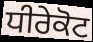
ਧੀਰੇਕੋਟ